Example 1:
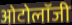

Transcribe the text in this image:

ओटोलॉजी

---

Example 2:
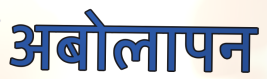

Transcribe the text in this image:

अबोलापन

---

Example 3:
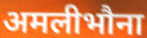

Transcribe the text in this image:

अमलीभौना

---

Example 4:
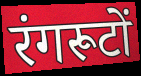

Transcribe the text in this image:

रंगरूटों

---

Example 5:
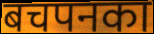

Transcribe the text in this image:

बचपनका